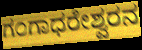
ಗಂಗಾಧರೇಶ್ವರನ